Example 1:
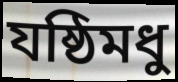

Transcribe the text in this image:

যষ্ঠিমধু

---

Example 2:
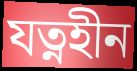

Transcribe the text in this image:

যত্নহীন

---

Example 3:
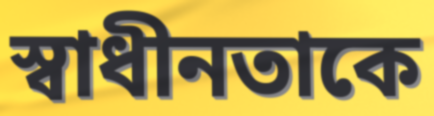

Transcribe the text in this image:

স্বাধীনতাকে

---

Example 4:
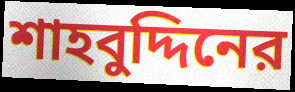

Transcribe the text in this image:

শাহবুদ্দিনের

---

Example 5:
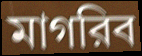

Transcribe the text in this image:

মাগরিব